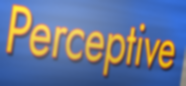
Perceptive